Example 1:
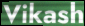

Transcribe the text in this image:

Vikash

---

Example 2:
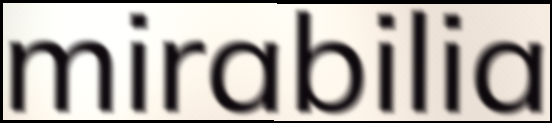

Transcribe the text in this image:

mirabilia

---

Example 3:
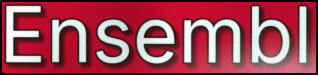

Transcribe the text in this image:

Ensembl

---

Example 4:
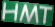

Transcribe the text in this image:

HMT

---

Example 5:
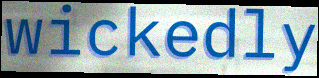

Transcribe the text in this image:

wickedly